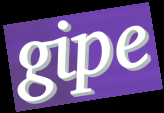
gipe